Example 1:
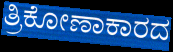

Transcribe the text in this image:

ತ್ರಿಕೋಣಾಕಾರದ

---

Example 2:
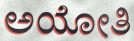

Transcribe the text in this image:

ಅಯೋತಿ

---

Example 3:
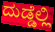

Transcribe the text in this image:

ದುಡ್ಡೆಲ್ಲಿ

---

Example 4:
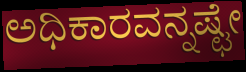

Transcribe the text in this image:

ಅಧಿಕಾರವನ್ನಷ್ಟೇ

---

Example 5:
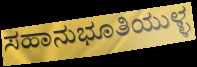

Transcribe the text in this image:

ಸಹಾನುಭೂತಿಯುಳ್ಳ